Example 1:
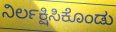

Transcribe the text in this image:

ನಿರ್ಲಕ್ಷಿಸಿಕೊಂಡು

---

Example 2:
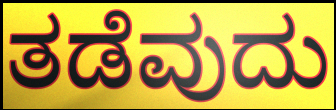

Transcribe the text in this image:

ತಡೆವುದು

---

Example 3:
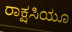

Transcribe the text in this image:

ರಾಕ್ಷಸಿಯೂ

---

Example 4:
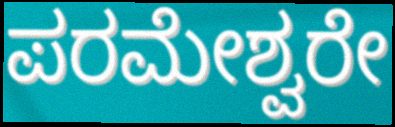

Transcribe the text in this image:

ಪರಮೇಶ್ವರೇ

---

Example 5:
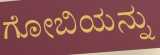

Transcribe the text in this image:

ಗೋಬಿಯನ್ನು